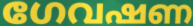
ഗേവഷണ